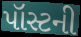
પૉસ્ટની